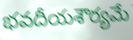
భవదీయశౌర్యమే